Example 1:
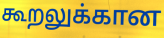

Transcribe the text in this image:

கூறலுக்கான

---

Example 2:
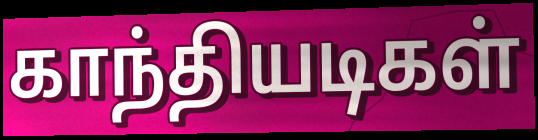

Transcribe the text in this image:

காந்தியடிகள்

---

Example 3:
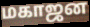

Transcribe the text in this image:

மகாஜன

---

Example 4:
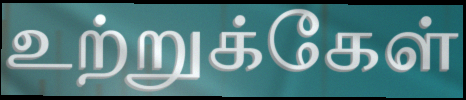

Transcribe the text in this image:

உற்றுக்கேள்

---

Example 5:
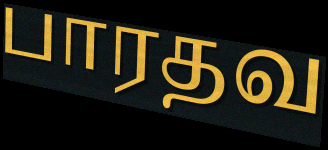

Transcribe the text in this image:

பாரதவ